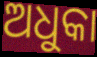
ଅଧୁକା